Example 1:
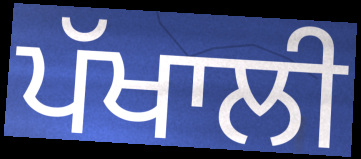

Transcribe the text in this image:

ਪੱਖਾਲੀ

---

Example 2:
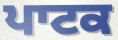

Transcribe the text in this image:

ਪਾਟਕ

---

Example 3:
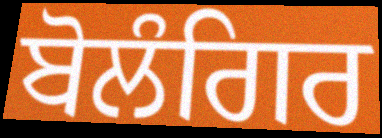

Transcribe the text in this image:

ਬੋਲੰਗਿਰ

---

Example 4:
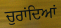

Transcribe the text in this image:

ਚੁਰਾਂਦਿਆਂ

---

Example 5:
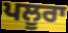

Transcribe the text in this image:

ਪਲੂਰਾ